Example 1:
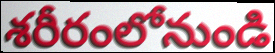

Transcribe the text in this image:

శరీరంలోనుండి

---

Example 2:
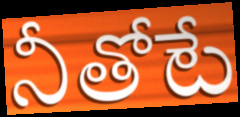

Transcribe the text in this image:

నీతోటే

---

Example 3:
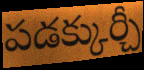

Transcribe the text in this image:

పడక్కుర్చీ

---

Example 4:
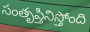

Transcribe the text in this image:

సంతృప్తినిస్తోంది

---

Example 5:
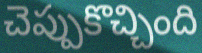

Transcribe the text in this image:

చెప్పుకొచ్చింది